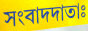
সংবাদদাতাঃ